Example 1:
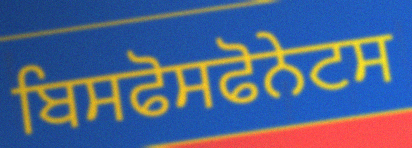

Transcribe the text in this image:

ਬਿਸਫੋਸਫੋਨੇਟਸ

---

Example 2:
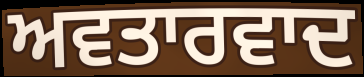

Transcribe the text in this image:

ਅਵਤਾਰਵਾਦ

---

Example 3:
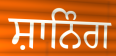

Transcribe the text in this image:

ਸ਼ਾਨਿੰਗ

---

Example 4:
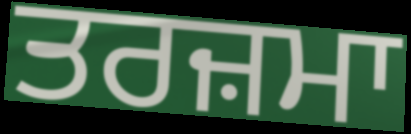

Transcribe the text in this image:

ਤਰਜ਼ਮਾ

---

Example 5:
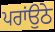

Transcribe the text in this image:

ਪਰਾਂਉਠੇ